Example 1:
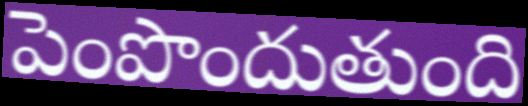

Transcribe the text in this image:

పెంపొందుతుంది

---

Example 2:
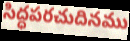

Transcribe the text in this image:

సిద్ధపరచుదినము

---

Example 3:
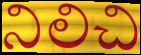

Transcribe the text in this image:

నిలిచి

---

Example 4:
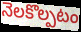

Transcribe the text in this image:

నెలకొల్పటం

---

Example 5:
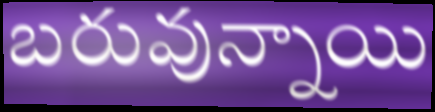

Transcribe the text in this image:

బరువున్నాయి